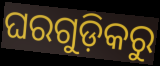
ଘରଗୁଡ଼ିକରୁ